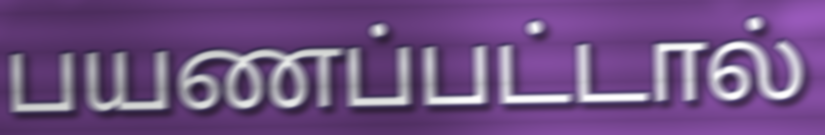
பயணப்பட்டால்